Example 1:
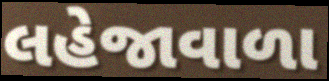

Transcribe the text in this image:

લહેજાવાળા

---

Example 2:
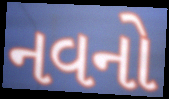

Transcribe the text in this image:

નવનો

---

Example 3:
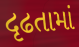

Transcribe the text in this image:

દૃઢતામાં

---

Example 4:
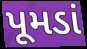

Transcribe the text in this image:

પૂમડાં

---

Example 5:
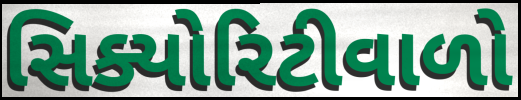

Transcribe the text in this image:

સિક્યોરિટીવાળો